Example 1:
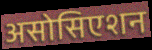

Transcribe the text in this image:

असोसिएशन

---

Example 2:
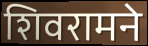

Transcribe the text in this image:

शिवरामने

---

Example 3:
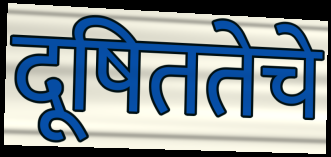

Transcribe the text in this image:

दूषिततेचे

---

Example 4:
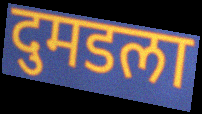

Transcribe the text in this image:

दुमडला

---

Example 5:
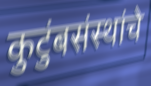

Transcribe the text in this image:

कुटुंबसंस्थांचे